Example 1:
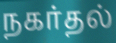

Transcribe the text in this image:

நகர்தல்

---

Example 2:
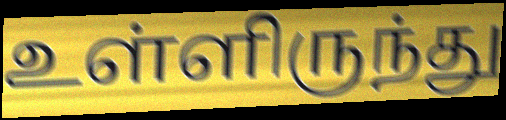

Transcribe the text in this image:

உள்ளிருந்து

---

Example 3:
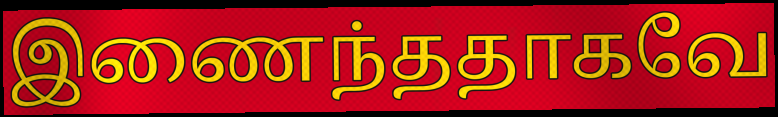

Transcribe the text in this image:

இணைந்ததாகவே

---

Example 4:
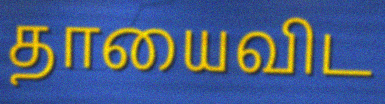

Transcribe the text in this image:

தாயைவிட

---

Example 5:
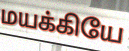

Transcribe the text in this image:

மயக்கியே